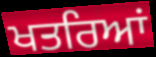
ਖਤਰਿਆਂ